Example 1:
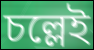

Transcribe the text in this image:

চল্লেই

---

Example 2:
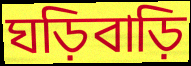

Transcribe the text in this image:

ঘড়িবাড়ি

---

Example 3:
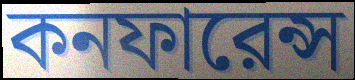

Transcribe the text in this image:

কনফারেন্স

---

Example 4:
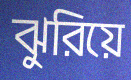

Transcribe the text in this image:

ঝুরিয়ে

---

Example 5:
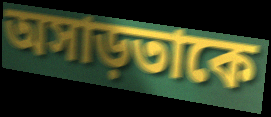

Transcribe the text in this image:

অসাড়তাকে